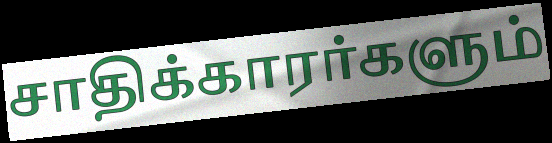
சாதிக்காரர்களும்